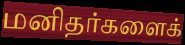
மனிதர்களைக்